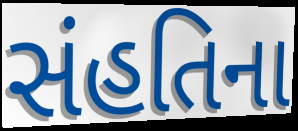
સંહતિના